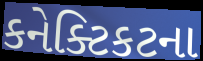
કનેક્ટિકટના